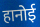
हानोई